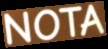
NOTA